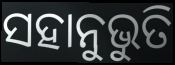
ସହାନୁଭୁତି